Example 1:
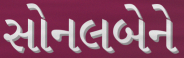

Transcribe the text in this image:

સોનલબેને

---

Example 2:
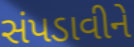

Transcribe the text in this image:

સંપડાવીને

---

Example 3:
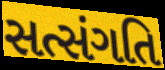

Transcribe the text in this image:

સત્સંગતિ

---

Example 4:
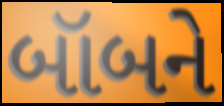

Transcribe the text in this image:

બૉબને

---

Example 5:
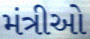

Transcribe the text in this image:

મંત્રીઓ